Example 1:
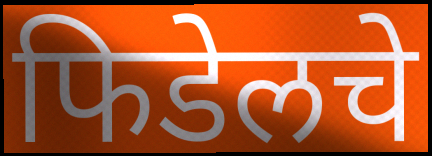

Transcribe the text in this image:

फिडेलचे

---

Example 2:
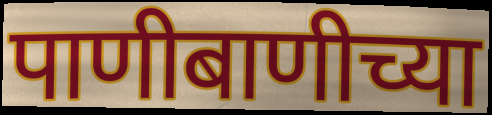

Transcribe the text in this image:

पाणीबाणीच्या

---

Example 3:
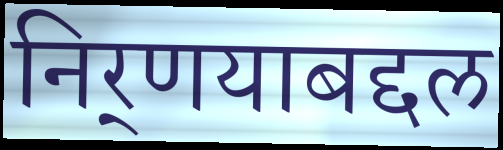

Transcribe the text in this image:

निर्णयाबद्दल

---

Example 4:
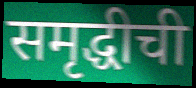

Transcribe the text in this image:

समृद्धीची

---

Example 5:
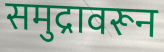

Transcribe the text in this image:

समुद्रावरून